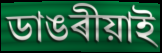
ডাঙৰীয়াই